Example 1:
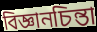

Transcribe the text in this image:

বিজ্ঞানচিন্তা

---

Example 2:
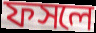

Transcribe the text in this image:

ফসলে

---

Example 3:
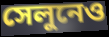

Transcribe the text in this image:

সেলুনেও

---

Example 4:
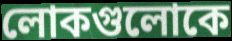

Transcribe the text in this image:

লোকগুলোকে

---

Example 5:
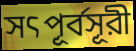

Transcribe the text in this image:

সৎপূর্বসূরী